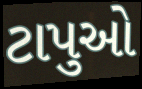
ટાપુઓ